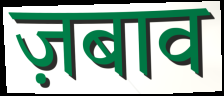
ज़बाव